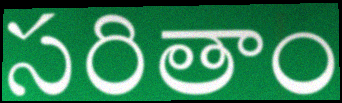
సరితాం